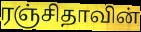
ரஞ்சிதாவின்